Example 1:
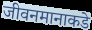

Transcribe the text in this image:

जीवनमानाकडे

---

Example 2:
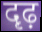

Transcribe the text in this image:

दृढ़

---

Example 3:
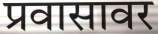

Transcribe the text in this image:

प्रवासावर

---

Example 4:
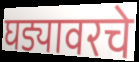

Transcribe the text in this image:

घड्यावरचे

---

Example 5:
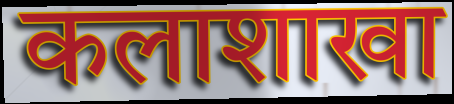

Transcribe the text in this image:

कलाशाखा